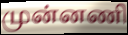
முன்னணி